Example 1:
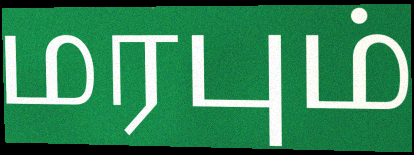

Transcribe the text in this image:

மரபும்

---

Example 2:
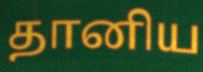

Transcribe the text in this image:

தானிய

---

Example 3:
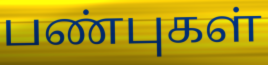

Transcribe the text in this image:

பண்புகள்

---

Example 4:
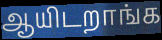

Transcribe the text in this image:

ஆயிடறாங்க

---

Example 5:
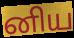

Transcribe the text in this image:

னிய